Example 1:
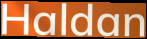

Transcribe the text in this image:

Haldan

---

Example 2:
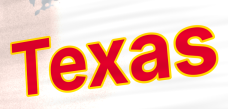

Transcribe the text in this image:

Texas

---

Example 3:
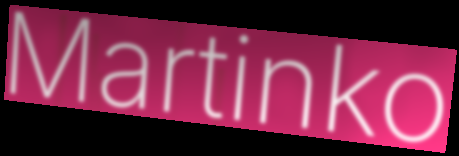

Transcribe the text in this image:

Martinko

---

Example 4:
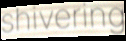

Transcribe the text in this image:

shivering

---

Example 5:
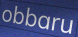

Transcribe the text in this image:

obbaru